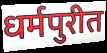
धर्मपुरीत